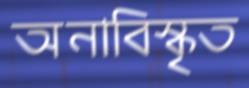
অনাবিস্কৃত